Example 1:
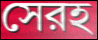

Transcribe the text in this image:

সেরহ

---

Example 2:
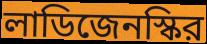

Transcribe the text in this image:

লাডিজেনস্কির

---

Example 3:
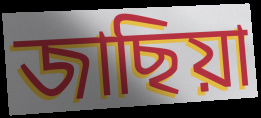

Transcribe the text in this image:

জাছিয়া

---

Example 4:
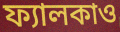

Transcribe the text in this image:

ফ্যালকাও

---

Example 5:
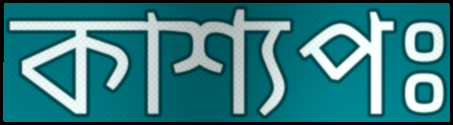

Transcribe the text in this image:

কাশ্যপঃ